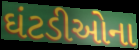
ઘંટડીઓના